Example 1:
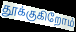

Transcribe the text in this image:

தூக்குகிறோம்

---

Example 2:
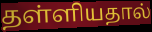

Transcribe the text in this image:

தள்ளியதால்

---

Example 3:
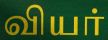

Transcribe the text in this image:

வியர்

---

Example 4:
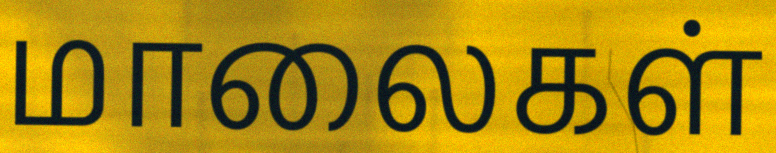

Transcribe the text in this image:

மாலைகள்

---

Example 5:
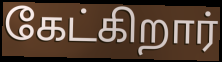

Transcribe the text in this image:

கேட்கிறார்